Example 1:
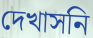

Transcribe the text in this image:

দেখাসনি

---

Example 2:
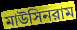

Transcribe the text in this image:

মাউসিনরাম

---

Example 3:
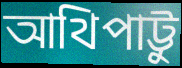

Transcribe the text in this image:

আথিপাট্টু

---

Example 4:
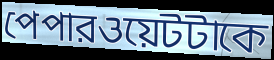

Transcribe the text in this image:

পেপারওয়েটটাকে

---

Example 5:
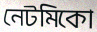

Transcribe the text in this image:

নেটমিকো